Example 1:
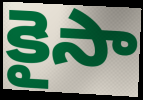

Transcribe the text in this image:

కైసా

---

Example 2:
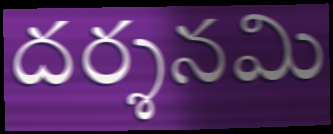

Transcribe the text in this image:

దర్శనమి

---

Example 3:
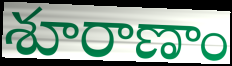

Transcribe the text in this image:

శూరాణాం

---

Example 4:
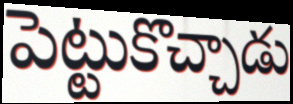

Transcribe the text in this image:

పెట్టుకొచ్చాడు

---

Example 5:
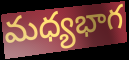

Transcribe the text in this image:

మధ్యభాగ